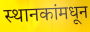
स्थानकांमधून